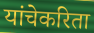
यांचेकरिता